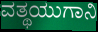
ವತ್ಥಯುಗಾನಿ